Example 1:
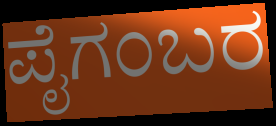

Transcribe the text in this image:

ಪೈಗಂಬರ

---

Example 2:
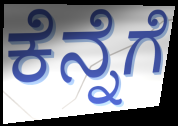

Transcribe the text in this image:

ಕೆನ್ನೆಗೆ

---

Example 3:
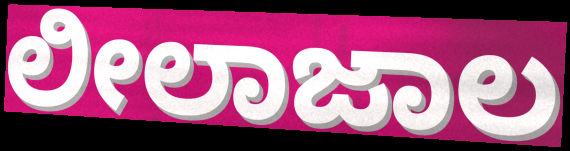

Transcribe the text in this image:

ಲೀಲಾಜಾಲ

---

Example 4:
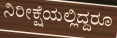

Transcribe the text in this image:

ನಿರೀಕ್ಷೆಯಲ್ಲಿದ್ದರೂ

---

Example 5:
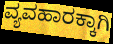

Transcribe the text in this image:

ವ್ಯವಹಾರಕ್ಕಾಗಿ